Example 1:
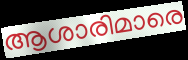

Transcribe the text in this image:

ആശാരിമാരെ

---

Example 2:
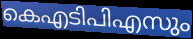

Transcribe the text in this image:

കെഎടിപിഎസും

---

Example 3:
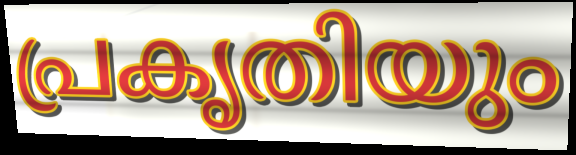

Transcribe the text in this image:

പ്രകൃതിയും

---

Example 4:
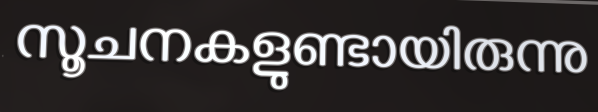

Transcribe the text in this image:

സൂചനകളുണ്ടായിരുന്നു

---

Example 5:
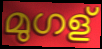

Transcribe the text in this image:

മുഗള്